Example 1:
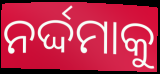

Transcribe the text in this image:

ନର୍ଦ୍ଦମାକୁ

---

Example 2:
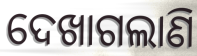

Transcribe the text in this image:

ଦେଖାଗଲାଣି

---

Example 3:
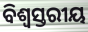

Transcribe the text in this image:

ବିଶ୍ବସ୍ତରୀୟ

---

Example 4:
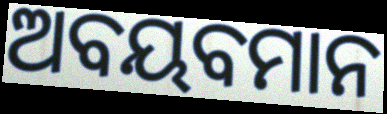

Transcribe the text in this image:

ଅବୟବମାନ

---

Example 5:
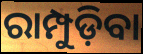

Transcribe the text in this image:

ରାମ୍ପୁଡ଼ିବା